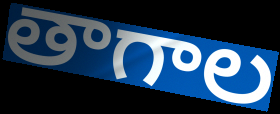
తాగాల